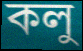
কলু